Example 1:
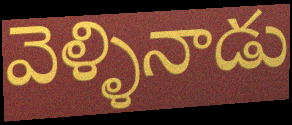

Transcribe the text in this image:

వెళ్ళినాడు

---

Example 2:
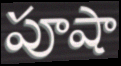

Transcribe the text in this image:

పూషా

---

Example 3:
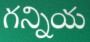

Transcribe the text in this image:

గన్నియ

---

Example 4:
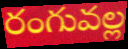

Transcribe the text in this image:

రంగువల్ల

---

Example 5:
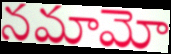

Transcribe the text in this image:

నమామో